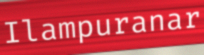
Ilampuranar